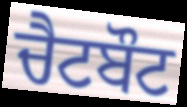
ਚੈਟਬੌਟ